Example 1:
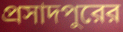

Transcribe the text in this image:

প্রসাদপুরের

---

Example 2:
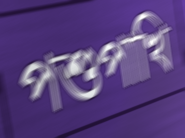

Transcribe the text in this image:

পশুপাখি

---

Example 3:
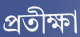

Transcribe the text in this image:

প্রতীক্ষা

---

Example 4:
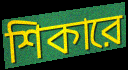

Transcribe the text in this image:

শিকারে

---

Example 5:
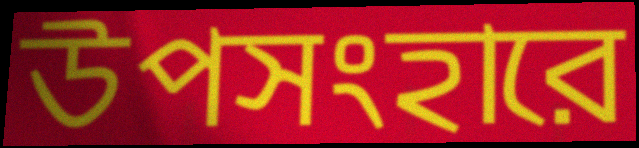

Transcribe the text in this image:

উপসংহারে